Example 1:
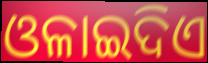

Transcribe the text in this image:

ଓଳାଇଦିଏ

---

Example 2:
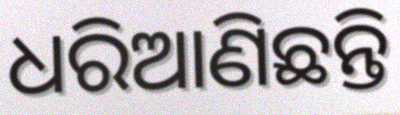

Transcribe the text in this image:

ଧରିଆଣିଛନ୍ତି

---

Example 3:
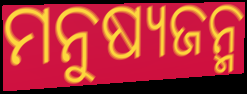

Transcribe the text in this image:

ମନୁଷ୍ୟଜନ୍ମ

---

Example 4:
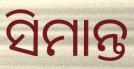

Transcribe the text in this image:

ସିମାନ୍ତ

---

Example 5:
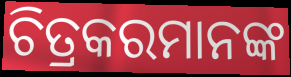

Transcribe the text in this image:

ଚିତ୍ରକରମାନଙ୍କ